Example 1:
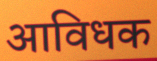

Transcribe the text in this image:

आविधक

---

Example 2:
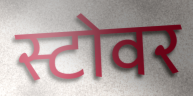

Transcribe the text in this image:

स्टोवर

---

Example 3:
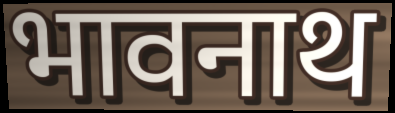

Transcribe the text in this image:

भावनाथ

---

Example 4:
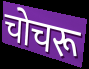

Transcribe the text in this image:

चोचरू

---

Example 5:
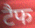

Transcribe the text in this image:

टैफ